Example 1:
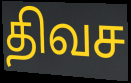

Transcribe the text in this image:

திவச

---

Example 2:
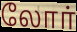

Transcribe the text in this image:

லோர்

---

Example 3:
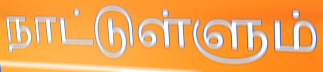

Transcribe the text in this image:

நாட்டுள்ளும்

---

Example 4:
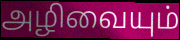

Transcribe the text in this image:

அழிவையும்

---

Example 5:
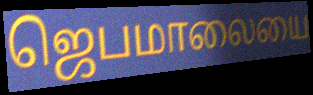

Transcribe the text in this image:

ஜெபமாலையை